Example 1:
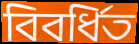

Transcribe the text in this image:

বিবর্ধিত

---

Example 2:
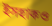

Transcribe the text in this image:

ইসহাকও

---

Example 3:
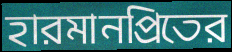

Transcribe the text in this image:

হারমানপ্রিতের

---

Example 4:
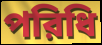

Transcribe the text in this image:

পরিধি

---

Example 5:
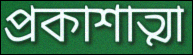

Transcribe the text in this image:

প্রকাশাত্মা